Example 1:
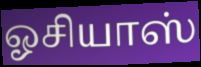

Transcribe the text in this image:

ஓசியாஸ்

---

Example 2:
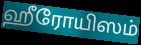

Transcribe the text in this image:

ஹீரோயிஸம்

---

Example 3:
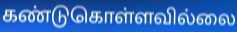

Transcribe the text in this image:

கண்டுகொள்ளவில்லை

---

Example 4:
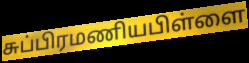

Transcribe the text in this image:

சுப்பிரமணியபிள்ளை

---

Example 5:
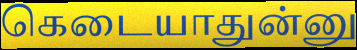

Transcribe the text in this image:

கெடையாதுன்னு